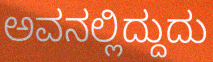
ಅವನಲ್ಲಿದ್ದುದು